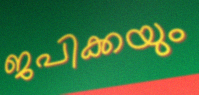
ജപിക്കയും